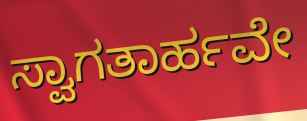
ಸ್ವಾಗತಾರ್ಹವೇ